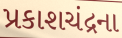
પ્રકાશચંદ્રના